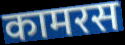
कामरस